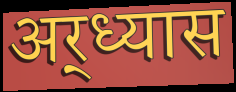
अर्ध्यास